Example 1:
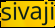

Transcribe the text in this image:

sivaji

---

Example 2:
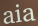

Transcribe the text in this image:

aia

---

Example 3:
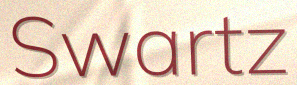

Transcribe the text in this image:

Swartz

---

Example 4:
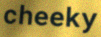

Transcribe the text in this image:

cheeky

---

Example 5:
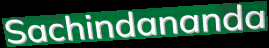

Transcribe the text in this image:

Sachindananda